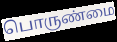
பொருண்மை